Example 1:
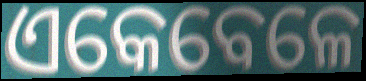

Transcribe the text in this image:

ଏକେବେଳେ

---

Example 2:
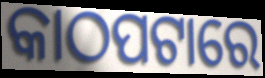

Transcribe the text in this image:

କାଠପଟାରେ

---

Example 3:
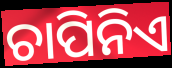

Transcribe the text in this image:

ଚାପିନିଏ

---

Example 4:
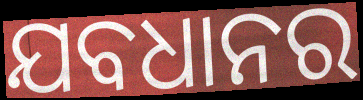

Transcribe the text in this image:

ଯବଧାନର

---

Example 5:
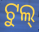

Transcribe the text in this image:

ଟୁଲ୍